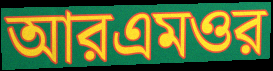
আরএমওর